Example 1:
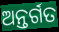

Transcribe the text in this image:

ଅନ୍ତର୍ଗତ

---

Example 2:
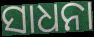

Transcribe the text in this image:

ସାଧନା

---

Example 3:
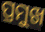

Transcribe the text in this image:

ପ୍ରମୁଖ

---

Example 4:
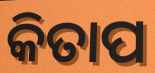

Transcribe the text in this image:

କିତାପ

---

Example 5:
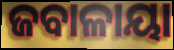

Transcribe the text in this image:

ଜବାଳାୟା